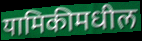
यामिकीमधील